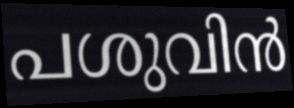
പശുവിൻ